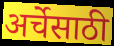
अर्चेसाठी